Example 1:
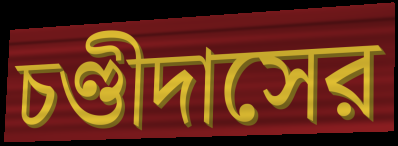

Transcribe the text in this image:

চণ্ডীদাসের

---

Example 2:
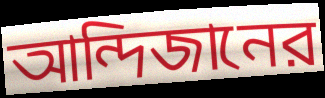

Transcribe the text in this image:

আন্দিজানের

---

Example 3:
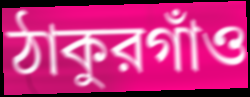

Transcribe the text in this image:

ঠাকুরগাঁও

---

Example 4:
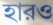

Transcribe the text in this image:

হারও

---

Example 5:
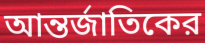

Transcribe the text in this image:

আন্তর্জাতিকের